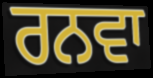
ਰਨਵਾ